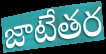
జాటేతర